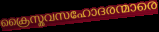
ക്രൈസ്തവസഹോദരന്മാരെ